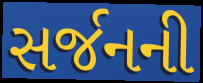
સર્જનની